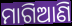
ମାଗିଆଣି